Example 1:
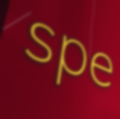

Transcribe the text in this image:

spe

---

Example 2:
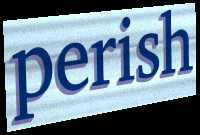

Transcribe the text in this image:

perish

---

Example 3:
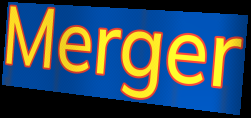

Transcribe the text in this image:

Merger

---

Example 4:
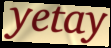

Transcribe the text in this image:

yetay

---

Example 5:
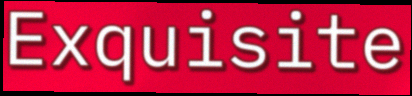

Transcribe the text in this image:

Exquisite